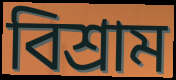
বিশ্ৰাম